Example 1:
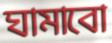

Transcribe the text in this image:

ঘামাবো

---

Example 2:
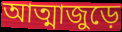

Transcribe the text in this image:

আত্মাজুড়ে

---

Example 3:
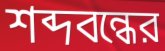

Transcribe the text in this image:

শব্দবন্ধের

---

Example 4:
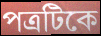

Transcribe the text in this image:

পত্রটিকে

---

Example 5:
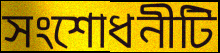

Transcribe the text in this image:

সংশোধনীটি